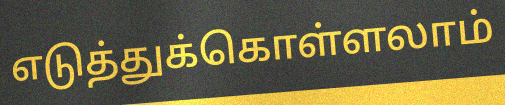
எடுத்துக்கொள்ளலாம்